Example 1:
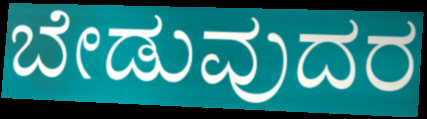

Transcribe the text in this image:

ಬೇಡುವುದರ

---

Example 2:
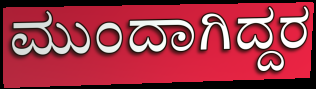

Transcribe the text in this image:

ಮುಂದಾಗಿದ್ದರ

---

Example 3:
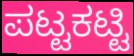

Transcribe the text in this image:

ಪಟ್ಟಕಟ್ಟಿ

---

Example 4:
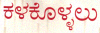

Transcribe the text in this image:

ಕಳಕೊಳ್ಳಲು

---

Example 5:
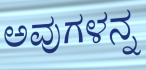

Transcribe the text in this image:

ಅವುಗಳನ್ನ